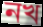
নখ